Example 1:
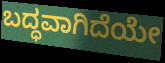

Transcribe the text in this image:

ಬದ್ಧವಾಗಿದೆಯೇ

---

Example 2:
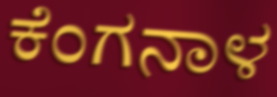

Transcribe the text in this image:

ಕೆಂಗನಾಳ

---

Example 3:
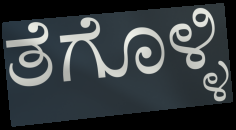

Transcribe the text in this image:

ತೆಗೊಳ್ಳಿ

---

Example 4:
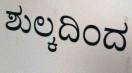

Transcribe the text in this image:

ಶುಲ್ಕದಿಂದ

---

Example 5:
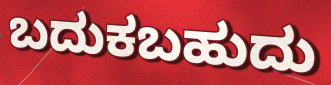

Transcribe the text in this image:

ಬದುಕಬಹುದು